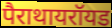
पैराथायरॉयड